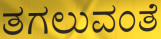
ತಗಲುವಂತೆ